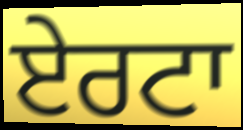
ਏਰਟਾ